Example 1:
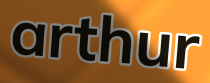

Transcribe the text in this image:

arthur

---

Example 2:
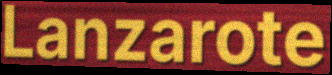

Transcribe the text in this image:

Lanzarote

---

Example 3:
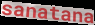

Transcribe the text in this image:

sanatana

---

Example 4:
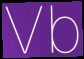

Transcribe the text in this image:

Vb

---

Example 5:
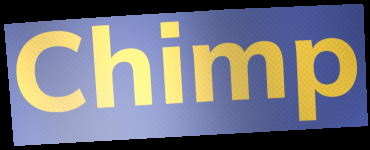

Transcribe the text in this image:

Chimp